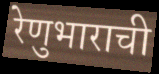
रेणुभाराची